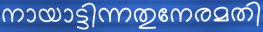
നായാട്ടിന്നതുനേരമതി